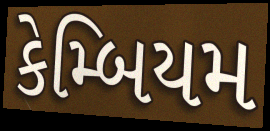
કેમ્બિયમ